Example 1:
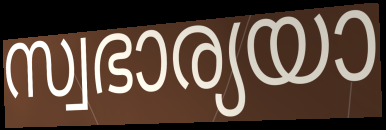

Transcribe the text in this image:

സ്വഭാര്യയാ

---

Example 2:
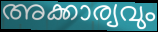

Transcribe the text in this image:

അക്കാര്യവും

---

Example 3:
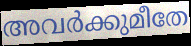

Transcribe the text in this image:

അവർക്കുമീതേ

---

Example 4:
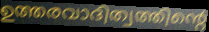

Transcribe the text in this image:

ഉത്തരവാദിത്വത്തിന്റെ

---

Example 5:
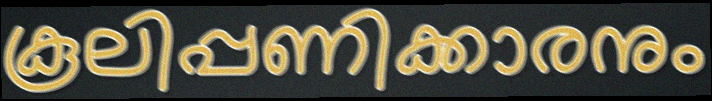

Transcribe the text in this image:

കൂലിപ്പണിക്കാരനും